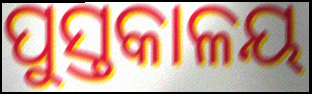
ପୁସ୍ତକାଳୟ